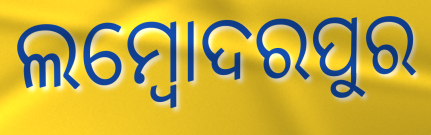
ଲମ୍ବୋଦରପୁର